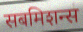
सबमिशन्स